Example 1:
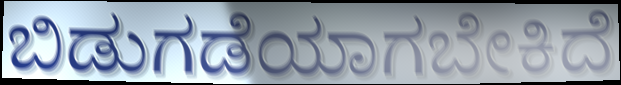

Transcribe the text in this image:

ಬಿಡುಗಡೆಯಾಗಬೇಕಿದೆ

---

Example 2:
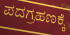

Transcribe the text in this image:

ಪದಗ್ರಹಣಕ್ಕೆ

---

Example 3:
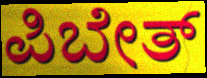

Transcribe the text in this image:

ಪಿಬೇತ್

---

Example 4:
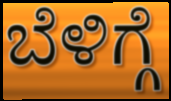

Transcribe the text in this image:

ಬೆಳಿಗ್ಗೆ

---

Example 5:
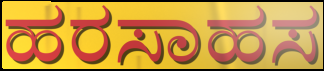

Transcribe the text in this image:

ಹರಸಾಹಸ